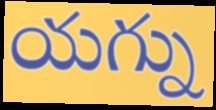
యగ్ను